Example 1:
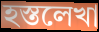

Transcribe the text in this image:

হস্তলেখা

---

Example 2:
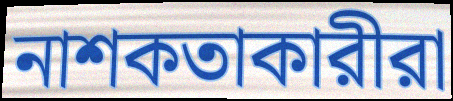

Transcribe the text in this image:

নাশকতাকারীরা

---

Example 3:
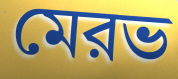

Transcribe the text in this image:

মেরভ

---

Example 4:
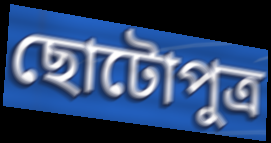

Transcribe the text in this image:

ছোটোপুত্র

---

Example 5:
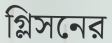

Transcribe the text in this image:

গ্লিসনের